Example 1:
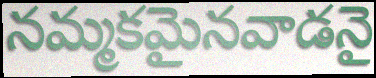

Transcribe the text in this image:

నమ్మకమైనవాడనై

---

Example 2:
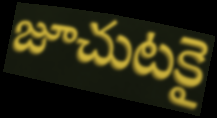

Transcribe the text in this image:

జూచుటకై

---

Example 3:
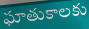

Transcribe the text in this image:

ఘాతుకాలకు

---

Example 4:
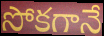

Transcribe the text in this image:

సోకగానే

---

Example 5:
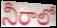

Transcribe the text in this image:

నీరాలో